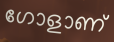
ഗോളാണ്